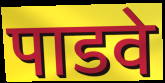
पाडवे